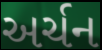
અર્ચન